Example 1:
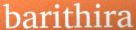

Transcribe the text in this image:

barithira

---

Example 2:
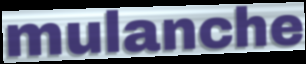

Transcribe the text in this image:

mulanche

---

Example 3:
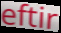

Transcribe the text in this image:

eftir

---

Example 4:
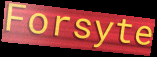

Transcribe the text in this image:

Forsyte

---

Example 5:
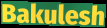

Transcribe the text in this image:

Bakulesh